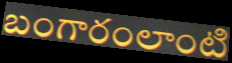
బంగారంలాంటి